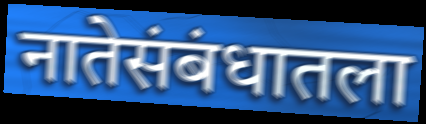
नातेसंबंधातला